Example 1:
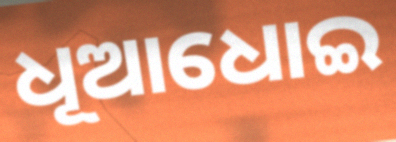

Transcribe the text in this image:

ଧୂଆଧୋଇ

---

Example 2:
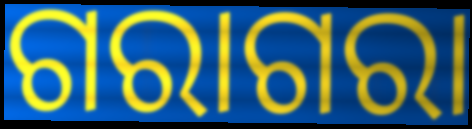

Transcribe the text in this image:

ଗରାଗରା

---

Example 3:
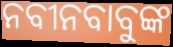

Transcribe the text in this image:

ନବୀନବାବୁଙ୍କ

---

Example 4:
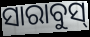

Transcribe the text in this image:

ସାରାବୁସ୍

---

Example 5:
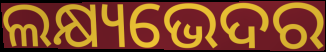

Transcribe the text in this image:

ଲକ୍ଷ୍ୟଭେଦର